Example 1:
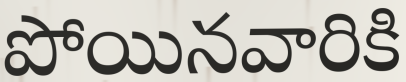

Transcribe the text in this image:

పోయినవారికి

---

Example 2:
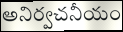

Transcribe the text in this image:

అనిర్వచనీయం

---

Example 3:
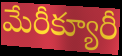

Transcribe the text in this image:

మేరీక్యూరీ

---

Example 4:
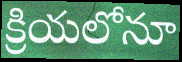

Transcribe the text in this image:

క్రియలోనూ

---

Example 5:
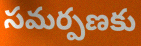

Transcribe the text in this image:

సమర్పణకు